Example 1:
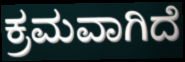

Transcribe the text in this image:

ಕ್ರಮವಾಗಿದೆ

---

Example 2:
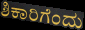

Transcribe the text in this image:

ಶಿಕಾರಿಗೆಂದು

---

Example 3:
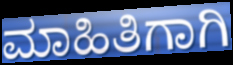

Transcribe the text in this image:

ಮಾಹಿತಿಗಾಗಿ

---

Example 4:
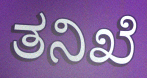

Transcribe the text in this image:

ತನಿಖೆ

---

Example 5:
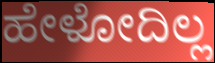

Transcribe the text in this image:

ಹೇಳೋದಿಲ್ಲ